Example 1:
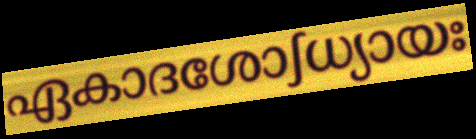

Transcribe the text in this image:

ഏകാദശോഽധ്യായഃ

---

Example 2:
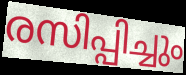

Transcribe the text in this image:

രസിപ്പിച്ചും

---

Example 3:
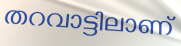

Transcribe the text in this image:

തറവാട്ടിലാണ്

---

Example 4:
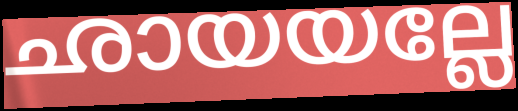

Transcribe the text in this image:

ഛായയല്ലേ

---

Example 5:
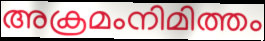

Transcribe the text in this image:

അക്രമംനിമിത്തം